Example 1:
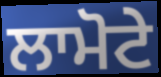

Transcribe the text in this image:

ਲਾਮੋਟੇ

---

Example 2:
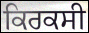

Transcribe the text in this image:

ਕਿਰਕਸੀ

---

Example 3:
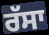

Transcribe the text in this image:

ਰੱਸਾ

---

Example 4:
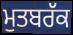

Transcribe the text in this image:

ਮੁਤਬਰੱਕ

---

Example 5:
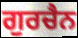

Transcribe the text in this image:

ਗੁਰਚੈਨ